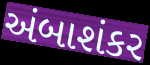
અંબાશંકર